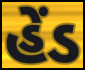
હેંડ